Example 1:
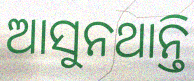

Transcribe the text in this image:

ଆସୁନଥାନ୍ତି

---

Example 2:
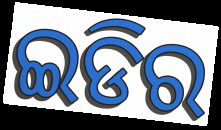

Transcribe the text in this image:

ଇଡିର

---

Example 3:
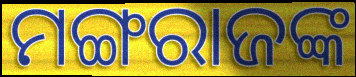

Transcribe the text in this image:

ମଙ୍ଗରାଜଙ୍କ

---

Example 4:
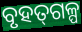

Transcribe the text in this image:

ବୃହତ୍‌ଗଳ୍ପ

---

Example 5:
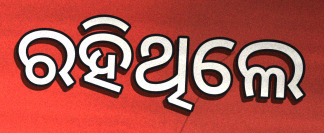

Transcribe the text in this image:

ରହିଥିଲେ